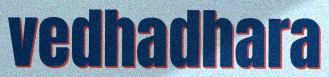
vedhadhara